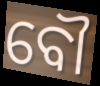
ବୌ